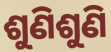
ଶୁଣିଶୁଣି